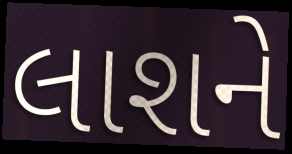
લાશને